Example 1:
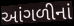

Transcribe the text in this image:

આંગળીનાં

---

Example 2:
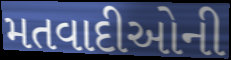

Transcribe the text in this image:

મતવાદીઓની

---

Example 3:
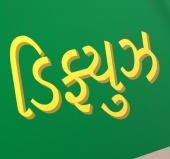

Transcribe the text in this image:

ડિફ્યુઝ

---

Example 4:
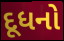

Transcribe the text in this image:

દૂધનો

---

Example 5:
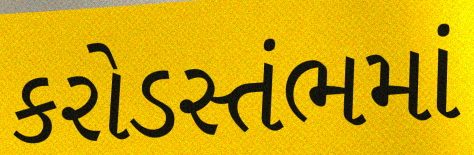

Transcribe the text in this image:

કરોડસ્તંભમાં